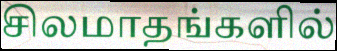
சிலமாதங்களில்